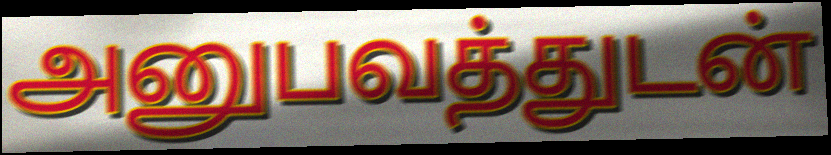
அனுபவத்துடன்